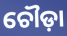
ଚୌଡ଼ା